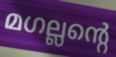
മഗല്ലന്റെ